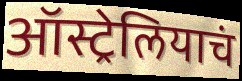
ऑस्ट्रेलियाचं